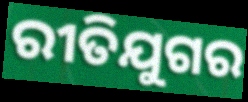
ରୀତିଯୁଗର